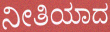
ನೀತಿಯಾದ